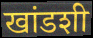
खांडशी